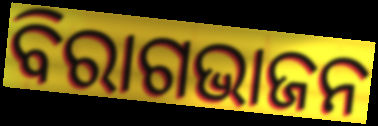
ବିରାଗଭାଜନ